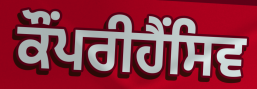
ਕੌਂਪਰੀਹੈਂਸਿਵ